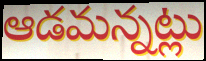
ఆడమన్నట్లు